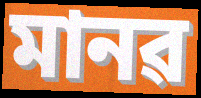
মানৱ